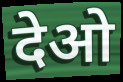
देओ